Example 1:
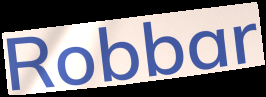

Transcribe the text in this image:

Robbar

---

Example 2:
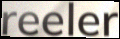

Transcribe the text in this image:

reeler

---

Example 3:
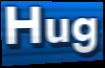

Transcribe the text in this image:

Hug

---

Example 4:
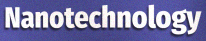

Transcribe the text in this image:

Nanotechnology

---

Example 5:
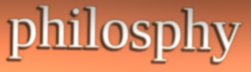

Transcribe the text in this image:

philosphy